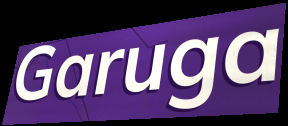
Garuga